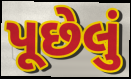
પૂછેલું